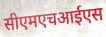
सीएमएचआईएस